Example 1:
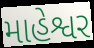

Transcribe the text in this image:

માહેશ્વર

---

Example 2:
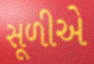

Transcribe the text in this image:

સૂળીએ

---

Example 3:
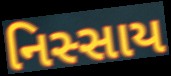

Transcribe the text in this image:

નિસ્સાય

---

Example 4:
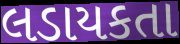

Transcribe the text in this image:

લડાયકતા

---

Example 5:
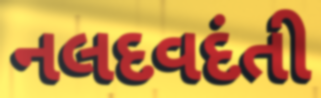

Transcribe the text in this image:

નલદવદંતી